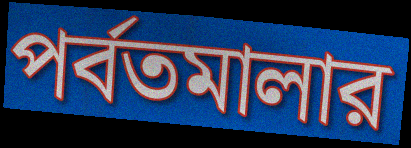
পর্বতমালার